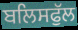
ਬਲਿਸਫੁੱਲ